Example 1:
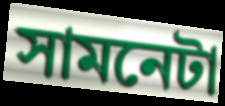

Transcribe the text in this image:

সামনেটা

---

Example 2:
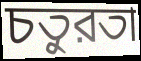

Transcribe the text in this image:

চতুরতা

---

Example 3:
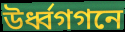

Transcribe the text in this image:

উর্ধ্বগগনে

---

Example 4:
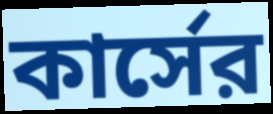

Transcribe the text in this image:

কার্সের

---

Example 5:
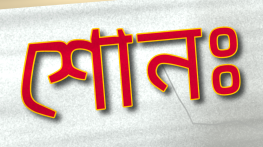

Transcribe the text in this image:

শোনঃ